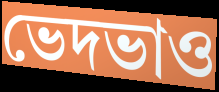
ভেদভাও